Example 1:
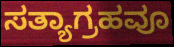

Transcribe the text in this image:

ಸತ್ಯಾಗ್ರಹವೂ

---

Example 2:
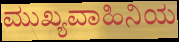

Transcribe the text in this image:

ಮುಖ್ಯವಾಹಿನಿಯ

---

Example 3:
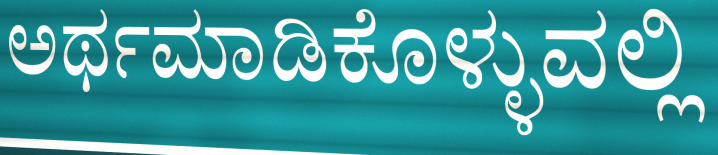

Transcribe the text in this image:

ಅರ್ಥಮಾಡಿಕೊಳ್ಳುವಲ್ಲಿ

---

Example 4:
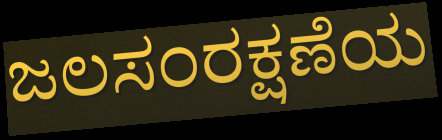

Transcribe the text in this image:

ಜಲಸಂರಕ್ಷಣೆಯ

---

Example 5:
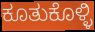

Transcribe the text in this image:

ಕೂತುಕೊಳ್ಳಿ